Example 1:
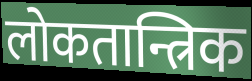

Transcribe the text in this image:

लोकतान्त्रिक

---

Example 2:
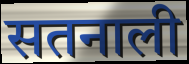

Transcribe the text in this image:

सतनाली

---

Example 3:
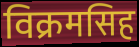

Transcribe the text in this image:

विक्रमसिह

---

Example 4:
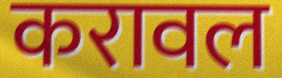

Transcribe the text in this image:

करावल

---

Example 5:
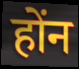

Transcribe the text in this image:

होंन